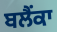
ਬਲੈਂਕਾ